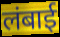
लंबाई